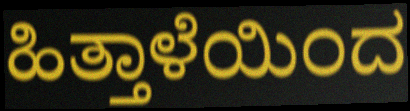
ಹಿತ್ತಾಳೆಯಿಂದ